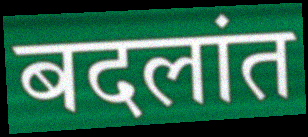
बदलांत